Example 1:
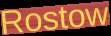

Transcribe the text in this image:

Rostow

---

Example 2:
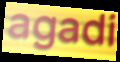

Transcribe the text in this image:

agadi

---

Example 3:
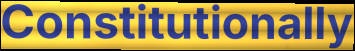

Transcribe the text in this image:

Constitutionally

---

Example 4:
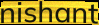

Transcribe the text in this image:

nishant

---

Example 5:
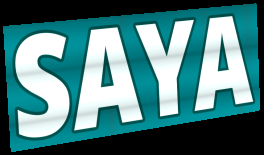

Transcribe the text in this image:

SAYA